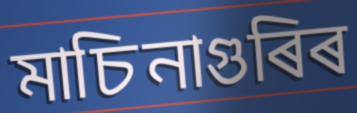
মাচিনাগুৰিৰ